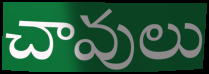
చావులు